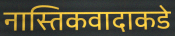
नास्तिकवादाकडे